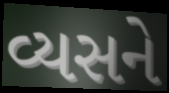
વ્યસને